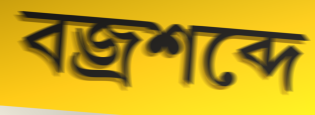
বজ্রশব্দে